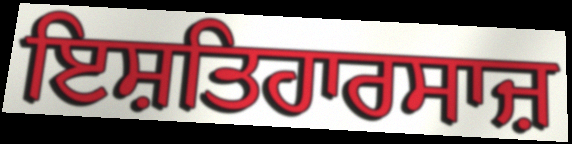
ਇਸ਼ਤਿਹਾਰਸਾਜ਼